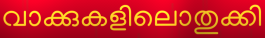
വാക്കുകളിലൊതുക്കി